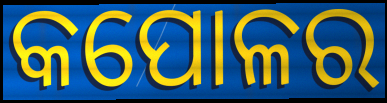
କପୋଳର